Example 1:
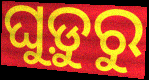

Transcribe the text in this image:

ଘୁଡ଼ୁରୁ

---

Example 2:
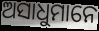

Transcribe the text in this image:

ଅସାଧୁମାନେ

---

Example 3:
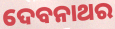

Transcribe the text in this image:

ଦେବନାଥର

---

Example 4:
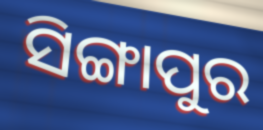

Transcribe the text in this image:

ସିଙ୍ଗାପୁର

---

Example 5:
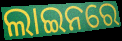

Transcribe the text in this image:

ଲାଇନରେ